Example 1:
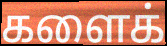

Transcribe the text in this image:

களைக்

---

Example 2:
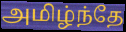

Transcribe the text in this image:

அமிழ்ந்தே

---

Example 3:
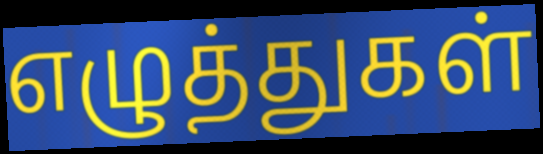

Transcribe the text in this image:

எழுத்துகள்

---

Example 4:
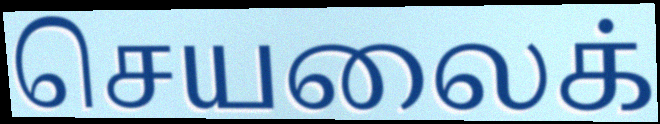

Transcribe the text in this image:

செயலைக்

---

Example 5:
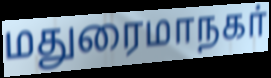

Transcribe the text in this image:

மதுரைமாநகர்